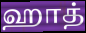
ஹாத்